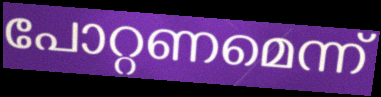
പോറ്റണമെന്ന്